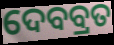
ଦେବବ୍ରତ